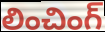
లించింగ్